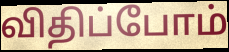
விதிப்போம்